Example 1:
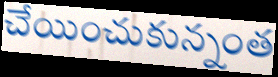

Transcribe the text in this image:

చేయించుకున్నంత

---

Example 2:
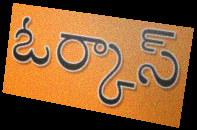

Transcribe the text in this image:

ఓర్కాస్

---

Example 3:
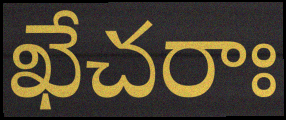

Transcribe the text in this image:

ఖేచరాః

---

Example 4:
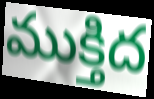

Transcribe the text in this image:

ముక్తిద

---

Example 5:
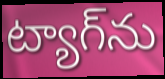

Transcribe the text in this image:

ట్యాగ్‌ను